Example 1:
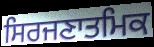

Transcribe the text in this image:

ਸਿਰਜਣਾਤਮਿਕ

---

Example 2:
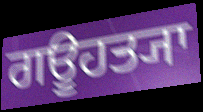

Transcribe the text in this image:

ਗਊਹਤ੍ਯਾ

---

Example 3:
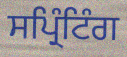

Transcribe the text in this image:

ਸਪ੍ਰਿੰਟਿੰਗ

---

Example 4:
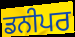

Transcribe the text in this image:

ਡਨੀਪਰ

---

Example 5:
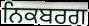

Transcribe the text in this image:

ਨਿਕਬਰਗ